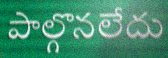
పాల్గొనలేదు